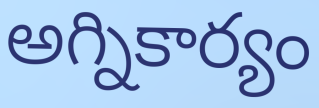
అగ్నికార్యం